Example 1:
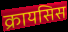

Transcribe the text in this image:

क्रायसिस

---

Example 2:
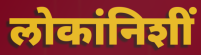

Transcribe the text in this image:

लोकांनिशीं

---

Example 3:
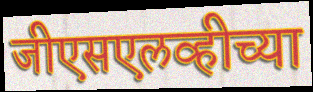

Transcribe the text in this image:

जीएसएलव्हीच्या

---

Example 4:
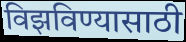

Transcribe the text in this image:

विझविण्यासाठी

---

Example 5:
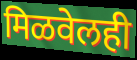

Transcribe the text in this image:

मिळवेलही